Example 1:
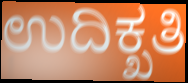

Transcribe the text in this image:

ಉದಿಕ್ಖತಿ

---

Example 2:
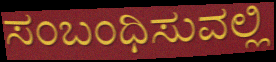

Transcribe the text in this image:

ಸಂಬಂಧಿಸುವಲ್ಲಿ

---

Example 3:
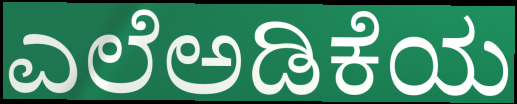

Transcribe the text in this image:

ಎಲೆಅಡಿಕೆಯ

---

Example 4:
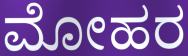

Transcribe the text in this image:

ಮೋಹರ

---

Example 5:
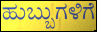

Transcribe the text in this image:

ಹುಬ್ಬುಗಳಿಗೆ